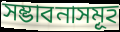
সম্ভাবনাসমূহ